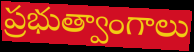
ప్రభుత్వాంగాలు